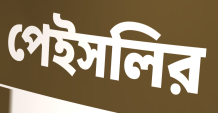
পেইসলির